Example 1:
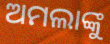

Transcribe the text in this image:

ଅମଲାଙ୍କୁ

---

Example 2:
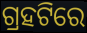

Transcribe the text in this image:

ଗ୍ରହଟିରେ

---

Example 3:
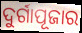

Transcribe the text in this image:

ଦୁର୍ଗାପୂଜାର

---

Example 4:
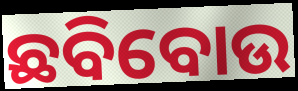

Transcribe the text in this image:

ଛବିବୋଉ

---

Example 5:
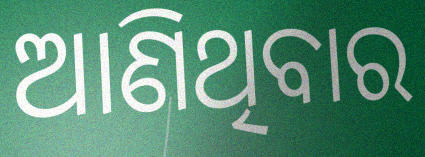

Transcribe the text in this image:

ଆଣିଥିବାର